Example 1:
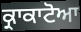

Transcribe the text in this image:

ਕ੍ਰਾਕਾਟੋਆ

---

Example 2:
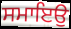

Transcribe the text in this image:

ਸਮਾਇਉ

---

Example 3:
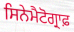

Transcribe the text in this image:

ਸਿਨੇਮੈਟੋਗ੍ਰਾਫ਼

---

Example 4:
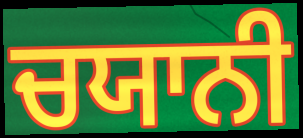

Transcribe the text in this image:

ਚਯਾਨੀ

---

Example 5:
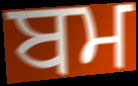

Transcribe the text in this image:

ਬਮ